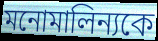
মনোমালিন্যকে